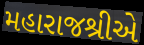
મહારાજશ્રીએ